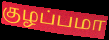
குழப்பமா